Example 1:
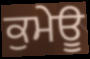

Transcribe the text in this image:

ਕੁਮੇਊ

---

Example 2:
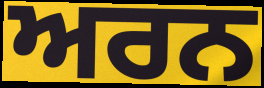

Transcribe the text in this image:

ਅਰਨ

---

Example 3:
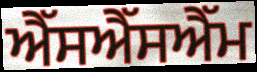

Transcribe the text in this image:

ਐੱਸਐੱਸਐੱਮ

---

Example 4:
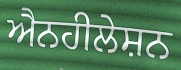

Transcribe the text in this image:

ਐਨਹੀਲੇਸ਼ਨ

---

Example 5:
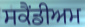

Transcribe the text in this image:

ਸਕੈਂਡੀਅਮ